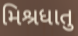
મિશ્રધાતુ